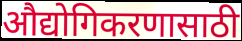
औद्योगिकरणासाठी